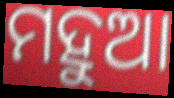
ମହୁଆ